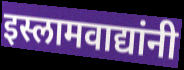
इस्लामवाद्यांनी